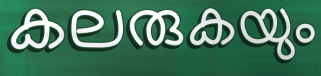
കലരുകയും